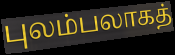
புலம்பலாகத்